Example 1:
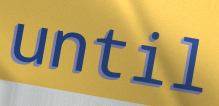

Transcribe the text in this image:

until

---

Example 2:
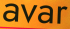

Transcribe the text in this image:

avar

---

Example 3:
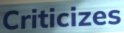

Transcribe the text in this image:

Criticizes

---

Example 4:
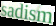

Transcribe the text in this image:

sadism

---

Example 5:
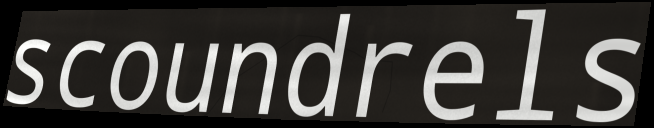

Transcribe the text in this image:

scoundrels